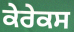
ਕੇਰੇਕਸ